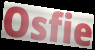
Osfie